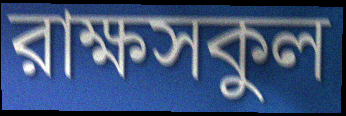
রাক্ষসকুল